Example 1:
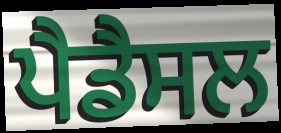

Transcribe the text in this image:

ਪੈਡੈਸਲ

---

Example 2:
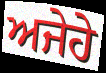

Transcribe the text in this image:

ਅਜੇਹੇ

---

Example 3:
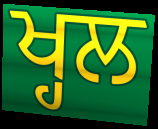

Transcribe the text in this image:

ਖ੍ਹਲ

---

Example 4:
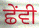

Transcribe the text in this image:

ਛੇੰਵੀ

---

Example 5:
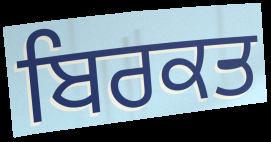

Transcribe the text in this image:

ਬਿਰਕਤ